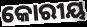
କୋରୀୟ